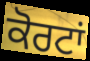
ਕੋਰਟਾਂ